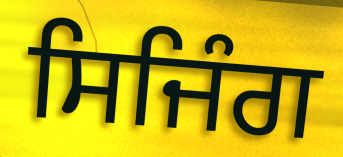
ਸਿਜਿੰਗ